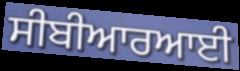
ਸੀਬੀਆਰਆਈ